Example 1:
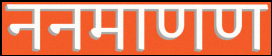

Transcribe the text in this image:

ननमाणण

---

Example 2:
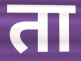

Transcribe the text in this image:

ता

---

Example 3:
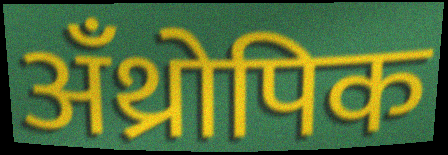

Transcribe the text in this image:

अँथ्रोपिक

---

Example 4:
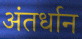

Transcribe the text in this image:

अंतर्धान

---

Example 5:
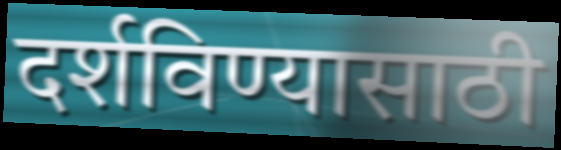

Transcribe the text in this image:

दर्शविण्यासाठी